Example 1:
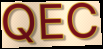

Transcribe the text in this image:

QEC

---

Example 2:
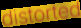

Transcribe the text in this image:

distorted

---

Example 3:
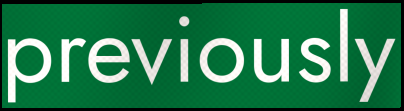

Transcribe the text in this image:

previously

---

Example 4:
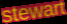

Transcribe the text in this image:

stewart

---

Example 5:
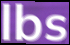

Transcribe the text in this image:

lbs